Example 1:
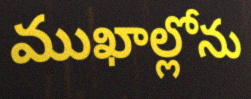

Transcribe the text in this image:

ముఖాల్లోను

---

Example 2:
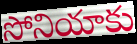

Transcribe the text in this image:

సోనియాకు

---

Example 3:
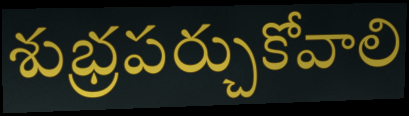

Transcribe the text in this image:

శుభ్రపర్చుకోవాలి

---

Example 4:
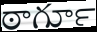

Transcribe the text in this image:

ఠాగూర్‍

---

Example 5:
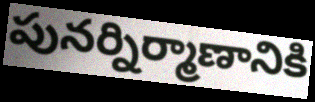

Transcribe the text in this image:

పునర్నిర్మాణానికి